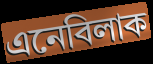
এনেবিলাক